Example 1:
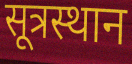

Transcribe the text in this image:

सूत्रस्थान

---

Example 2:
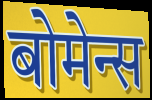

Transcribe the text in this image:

बोमेन्स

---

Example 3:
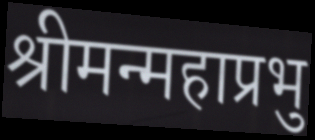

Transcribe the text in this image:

श्रीमन्महाप्रभु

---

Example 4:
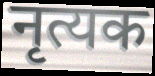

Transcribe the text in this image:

नृत्यक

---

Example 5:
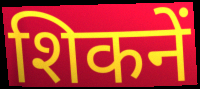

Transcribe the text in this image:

शिकनें